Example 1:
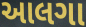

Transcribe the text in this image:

આલગા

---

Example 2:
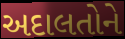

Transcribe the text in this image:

અદાલતોને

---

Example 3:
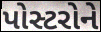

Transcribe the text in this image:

પોસ્ટરોને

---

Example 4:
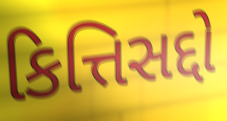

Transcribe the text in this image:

કિત્તિસદ્દો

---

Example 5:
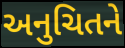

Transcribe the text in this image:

અનુચિતને